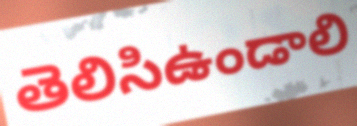
తెలిసిఉండాలి